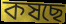
কষছে